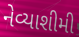
નેવ્યાશીમી